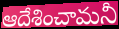
ఆదేశించామనీ